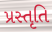
પ્રસ્તૃતિ